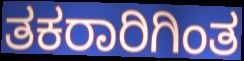
ತಕರಾರಿಗಿಂತ